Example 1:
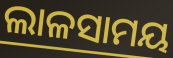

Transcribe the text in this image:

ଲାଳସାମୟ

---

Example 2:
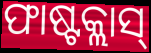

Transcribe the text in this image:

ଫାଷ୍ଟକ୍ଲାସ୍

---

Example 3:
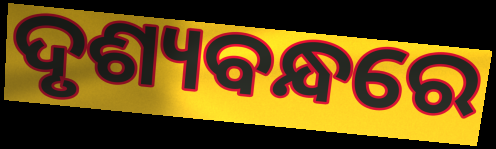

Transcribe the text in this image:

ଦୃଶ୍ୟବନ୍ଧରେ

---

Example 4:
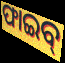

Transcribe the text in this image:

ଫାଇବ୍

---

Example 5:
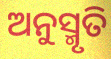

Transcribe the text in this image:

ଅନୁସ୍ମୃତି